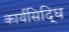
कार्यसिद्धि